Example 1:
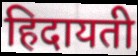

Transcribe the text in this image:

हिदायती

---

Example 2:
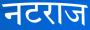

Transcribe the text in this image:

नटराज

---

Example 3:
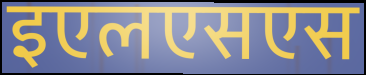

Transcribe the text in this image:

इएलएसएस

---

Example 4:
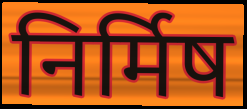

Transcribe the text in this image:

निर्मिष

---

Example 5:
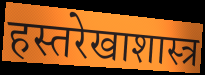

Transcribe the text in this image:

हस्तरेखाशास्त्र